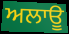
ਅਲਾਊ